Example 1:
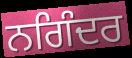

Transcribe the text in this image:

ਨਗਿੰਦਰ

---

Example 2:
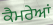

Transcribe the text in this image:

ਕੈਮਰੇਆਂ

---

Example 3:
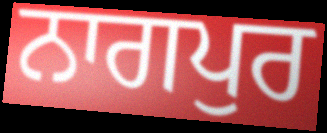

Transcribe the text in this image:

ਨਾਗਪੁਰ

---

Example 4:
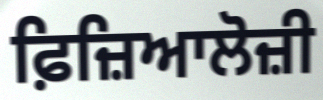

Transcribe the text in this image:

ਫ਼ਿਜ਼ਿਆਲੋਜ਼ੀ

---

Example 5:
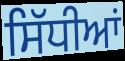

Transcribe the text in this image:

ਸਿੱਧੀਆਂ